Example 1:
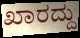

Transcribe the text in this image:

ಖಾರದ್ದು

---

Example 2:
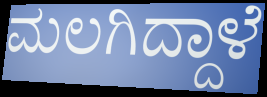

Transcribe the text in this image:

ಮಲಗಿದ್ದಾಳೆ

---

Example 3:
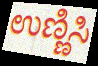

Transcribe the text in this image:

ಉಣ್ಣಿಸಿ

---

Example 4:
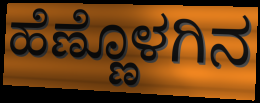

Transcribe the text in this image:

ಹೆಣ್ಣೊಳಗಿನ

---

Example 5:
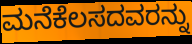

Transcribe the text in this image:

ಮನೆಕೆಲಸದವರನ್ನು